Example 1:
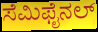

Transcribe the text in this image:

ಸೆಮಿಫೈನಲ್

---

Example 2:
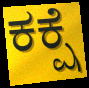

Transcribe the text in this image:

ಕಕ್ಷೆ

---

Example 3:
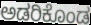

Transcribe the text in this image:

ಅಡರಿಕೊಂಡ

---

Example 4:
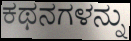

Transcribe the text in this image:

ಕಥನಗಳನ್ನು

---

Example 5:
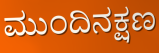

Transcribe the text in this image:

ಮುಂದಿನಕ್ಷಣ